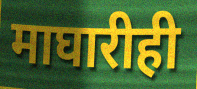
माघारीही